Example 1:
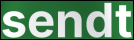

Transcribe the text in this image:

sendt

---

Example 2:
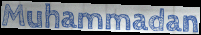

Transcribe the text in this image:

Muhammadan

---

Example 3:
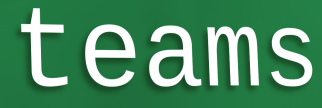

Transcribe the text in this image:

teams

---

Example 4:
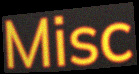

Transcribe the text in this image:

Misc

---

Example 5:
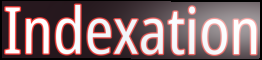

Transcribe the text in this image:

Indexation